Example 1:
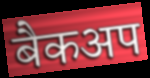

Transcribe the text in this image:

बैकअप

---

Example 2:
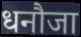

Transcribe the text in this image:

धनौजा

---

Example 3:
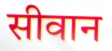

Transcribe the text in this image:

सीवान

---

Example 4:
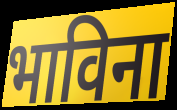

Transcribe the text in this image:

भाविना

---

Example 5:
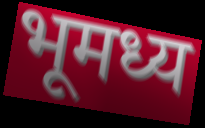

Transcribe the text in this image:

भूमध्य